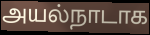
அயல்நாடாக